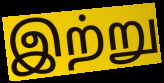
இற்று